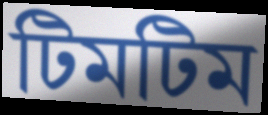
টিমটিম